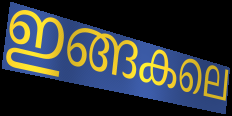
ഇങ്ങകലെ